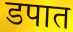
डपात